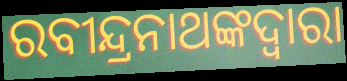
ରବୀନ୍ଦ୍ରନାଥଙ୍କଦ୍ୱାରା